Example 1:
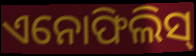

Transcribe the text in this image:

ଏନୋଫିଲିସ୍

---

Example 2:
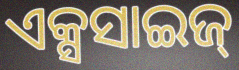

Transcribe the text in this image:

ଏକ୍ସସାଇଜ୍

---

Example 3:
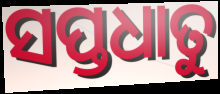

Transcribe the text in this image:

ସପ୍ତଧାତୁ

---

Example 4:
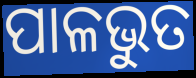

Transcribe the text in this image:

ପାଳଭୁତ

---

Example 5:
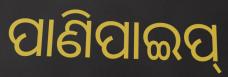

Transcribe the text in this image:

ପାଣିପାଇପ୍